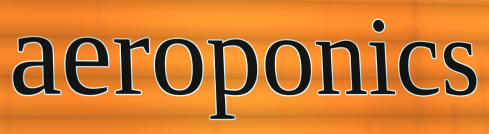
aeroponics